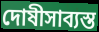
দোষীসাব্যস্ত